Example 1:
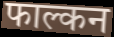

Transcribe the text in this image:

फाल्कन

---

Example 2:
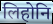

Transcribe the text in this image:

लिहोनि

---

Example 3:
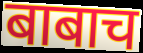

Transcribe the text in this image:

बाबाच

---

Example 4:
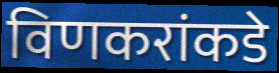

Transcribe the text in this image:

विणकरांकडे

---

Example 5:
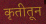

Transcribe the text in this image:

कृतीतून